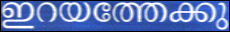
ഇറയത്തേക്കു